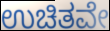
ಉಚಿತವೇ